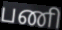
பணி